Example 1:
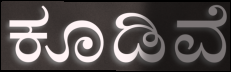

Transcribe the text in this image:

ಕೂಡಿವೆ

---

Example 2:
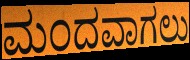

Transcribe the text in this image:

ಮಂದವಾಗಲು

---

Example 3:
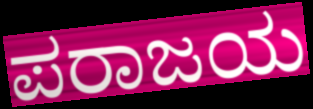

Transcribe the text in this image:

ಪರಾಜಯ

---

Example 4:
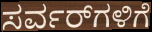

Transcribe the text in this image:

ಸರ್ವರ್‌ಗಳಿಗೆ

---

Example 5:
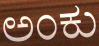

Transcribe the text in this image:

ಅಂಕು